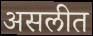
असलीत